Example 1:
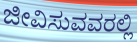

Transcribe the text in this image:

ಜೀವಿಸುವವರಲ್ಲಿ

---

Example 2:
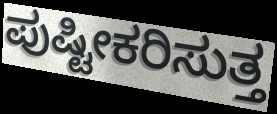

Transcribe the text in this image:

ಪುಷ್ಟೀಕರಿಸುತ್ತ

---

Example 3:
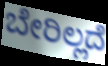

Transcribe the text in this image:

ಬೇರಿಲ್ಲದೆ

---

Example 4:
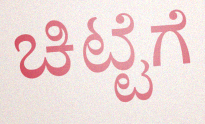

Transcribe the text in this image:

ಚಿಟ್ಟೆಗೆ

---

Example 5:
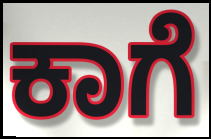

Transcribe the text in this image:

ಕಾಗೆ